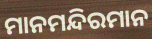
ମାନମନ୍ଦିରମାନ